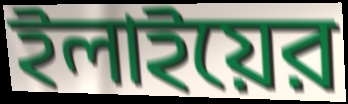
ইলাইয়ের